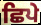
ਛਿਪੇ